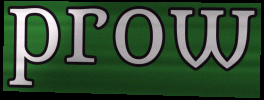
prow